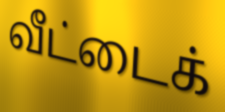
வீட்டைக்